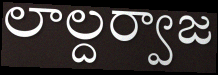
లాల్దర్వాజ